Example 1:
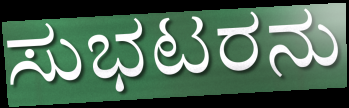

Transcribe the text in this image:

ಸುಭಟರನು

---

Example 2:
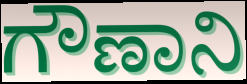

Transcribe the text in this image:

ಗೌಣಾನಿ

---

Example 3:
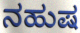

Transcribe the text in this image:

ನಹುಷ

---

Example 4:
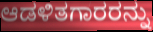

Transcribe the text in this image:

ಆಡಳಿತಗಾರರನ್ನು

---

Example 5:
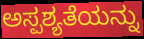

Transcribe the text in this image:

ಅಸ್ಪಶ್ಯತೆಯನ್ನು